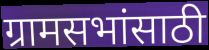
ग्रामसभांसाठी